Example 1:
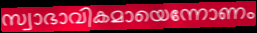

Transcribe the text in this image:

സ്വാഭാവികമായെന്നോണം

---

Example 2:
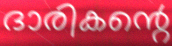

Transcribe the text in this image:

ദാരികന്റെ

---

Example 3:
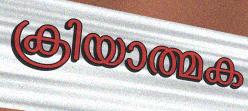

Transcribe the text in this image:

ക്രിയാത്മക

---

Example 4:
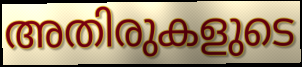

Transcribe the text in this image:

അതിരുകളുടെ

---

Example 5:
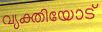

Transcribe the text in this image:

വ്യക്തിയോട്